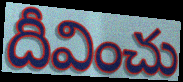
దీవించు